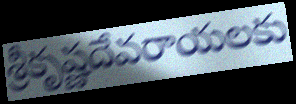
శ్రీకృష్ణదేవరాయలకు